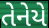
તેનેયે